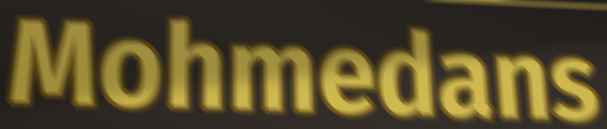
Mohmedans